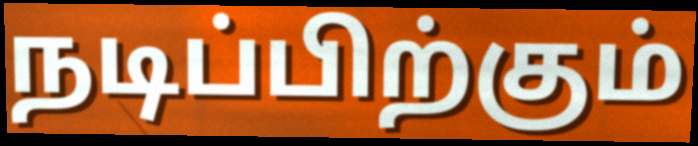
நடிப்பிற்கும்